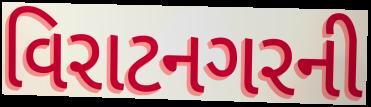
વિરાટનગરની